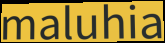
maluhia